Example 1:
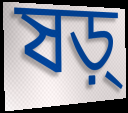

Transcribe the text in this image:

ষড়্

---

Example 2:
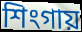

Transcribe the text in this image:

শিংগায়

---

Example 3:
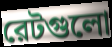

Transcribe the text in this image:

রেটগুলো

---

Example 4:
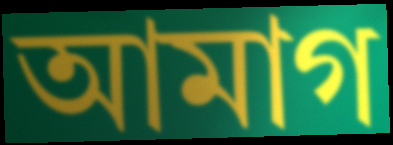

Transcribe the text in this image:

আমাগ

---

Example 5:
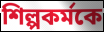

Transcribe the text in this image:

শিল্পকর্মকে